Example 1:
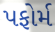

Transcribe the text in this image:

પફોર્મ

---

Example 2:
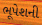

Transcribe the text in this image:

ભૂપેશની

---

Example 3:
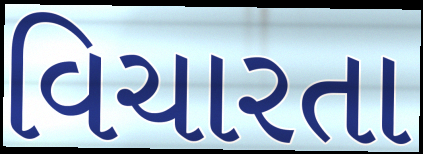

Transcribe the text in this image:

વિચારતા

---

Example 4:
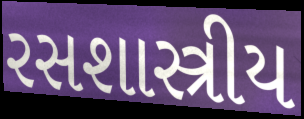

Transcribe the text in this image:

રસશાસ્ત્રીય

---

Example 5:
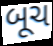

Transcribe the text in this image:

બૂચ